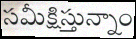
సమీక్షిస్తున్నాం